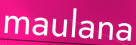
maulana